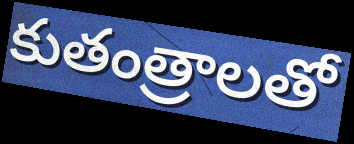
కుతంత్రాలతో